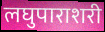
लघुपाराशरी